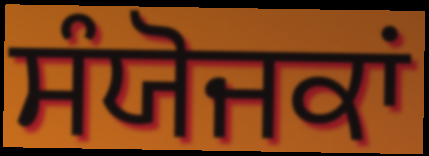
ਸੰਯੋਜਕਾਂ